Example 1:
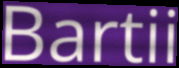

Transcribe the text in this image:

Bartii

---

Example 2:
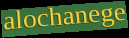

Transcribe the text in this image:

alochanege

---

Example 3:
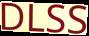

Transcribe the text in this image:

DLSS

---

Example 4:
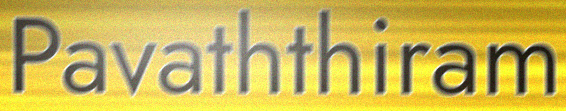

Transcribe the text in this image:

Pavaththiram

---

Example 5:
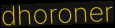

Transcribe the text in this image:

dhoroner